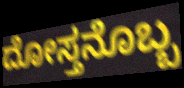
ದೋಸ್ತನೊಬ್ಬ